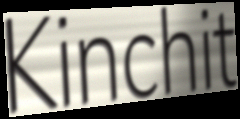
Kinchit